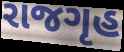
રાજગૃહ